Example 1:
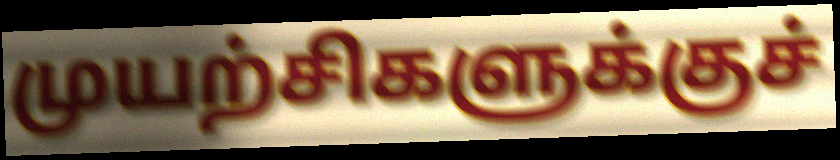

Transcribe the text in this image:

முயற்சிகளுக்குச்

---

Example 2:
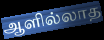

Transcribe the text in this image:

ஆளில்லாத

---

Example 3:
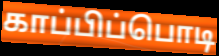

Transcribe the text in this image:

காப்பிப்பொடி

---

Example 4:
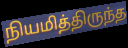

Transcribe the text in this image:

நியமித்திருந்த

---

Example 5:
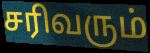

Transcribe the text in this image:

சரிவரும்